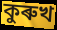
কুৰুখ